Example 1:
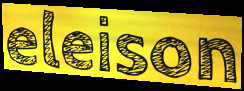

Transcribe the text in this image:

eleison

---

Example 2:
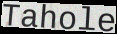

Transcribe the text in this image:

Tahole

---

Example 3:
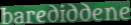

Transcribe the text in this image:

barediddene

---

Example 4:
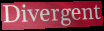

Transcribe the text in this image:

Divergent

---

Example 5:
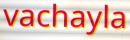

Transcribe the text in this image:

vachayla